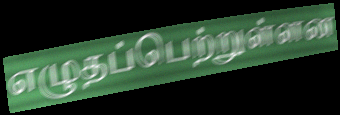
எழுதப்பெற்றுள்ளன